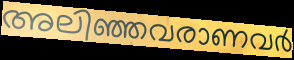
അലിഞ്ഞവരാണവർ